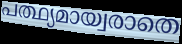
പത്ഥ്യമായ്വരാതെ